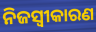
ନିଜସ୍ବୀକାରଣ